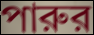
পারুর